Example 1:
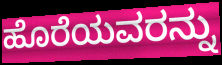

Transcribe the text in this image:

ಹೊರೆಯವರನ್ನು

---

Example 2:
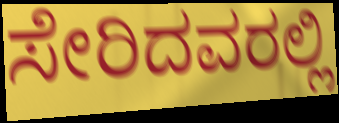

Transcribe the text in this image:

ಸೇರಿದವರಲ್ಲಿ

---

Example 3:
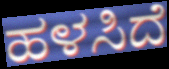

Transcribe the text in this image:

ಹಳಸಿದೆ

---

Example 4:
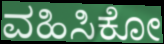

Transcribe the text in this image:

ವಹಿಸಿಕೋ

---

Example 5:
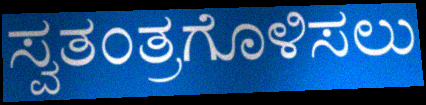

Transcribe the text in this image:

ಸ್ವತಂತ್ರಗೊಳಿಸಲು